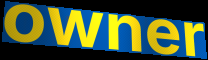
owner